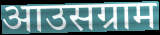
आउसग्राम